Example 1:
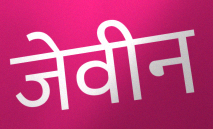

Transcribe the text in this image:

जेवीन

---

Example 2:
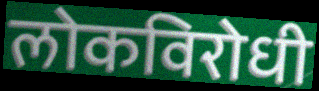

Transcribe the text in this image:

लोकविरोधी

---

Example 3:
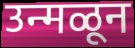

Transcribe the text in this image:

उन्मळून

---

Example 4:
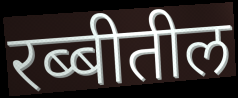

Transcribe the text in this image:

रब्बीतील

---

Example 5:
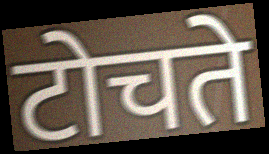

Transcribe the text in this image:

टोचते